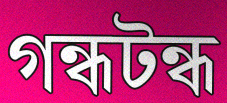
গন্ধটন্ধ